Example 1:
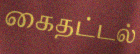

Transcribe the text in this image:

கைதட்டல்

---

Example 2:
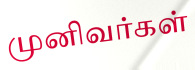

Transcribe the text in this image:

முனிவர்கள்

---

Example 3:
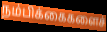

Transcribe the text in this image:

நம்பிக்கைகளைச்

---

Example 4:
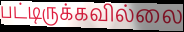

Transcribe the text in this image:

பட்டிருக்கவில்லை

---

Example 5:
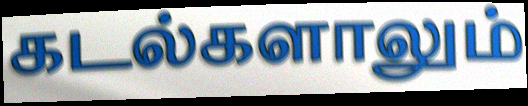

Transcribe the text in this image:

கடல்களாலும்